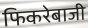
फिकरेबाजी